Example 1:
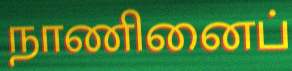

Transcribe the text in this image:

நாணினைப்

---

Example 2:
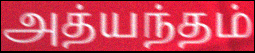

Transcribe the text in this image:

அத்யந்தம்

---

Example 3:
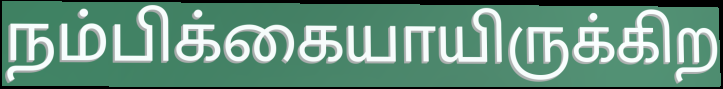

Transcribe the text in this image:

நம்பிக்கையாயிருக்கிற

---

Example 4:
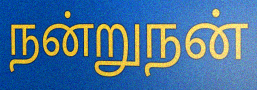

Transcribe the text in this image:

நன்றுநன்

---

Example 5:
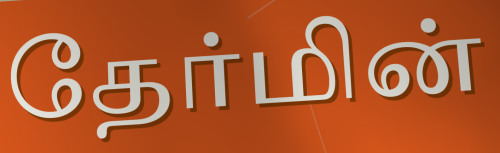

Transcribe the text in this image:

தேர்மின்